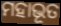
ମହାଭୂତ